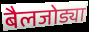
बैलजोड्या